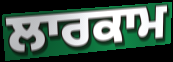
ਲਾਰਕਾਮ